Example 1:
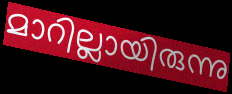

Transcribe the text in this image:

മാറില്ലായിരുന്നു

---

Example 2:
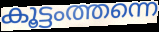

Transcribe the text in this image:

കൂട്ടംത്തന്നെ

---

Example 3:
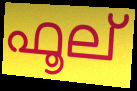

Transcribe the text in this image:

ഫൂല്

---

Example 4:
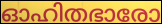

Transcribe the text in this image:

ഓഹിതഭാരോ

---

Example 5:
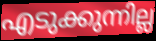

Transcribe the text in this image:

എടുക്കുന്നില്ല